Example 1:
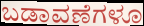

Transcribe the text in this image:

ಬಡಾವಣೆಗಳೂ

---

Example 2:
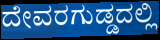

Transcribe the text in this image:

ದೇವರಗುಡ್ಡದಲ್ಲಿ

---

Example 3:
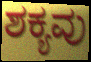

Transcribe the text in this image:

ಶಕ್ಯವು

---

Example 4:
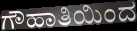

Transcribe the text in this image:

ಗೌಹಾತಿಯಿಂದ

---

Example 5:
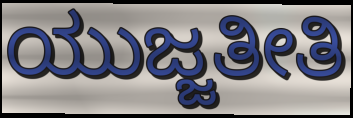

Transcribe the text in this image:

ಯುಜ್ಜತೀತಿ